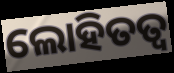
ଲୋହିତତ୍ଵ